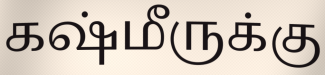
கஷ்மீருக்கு